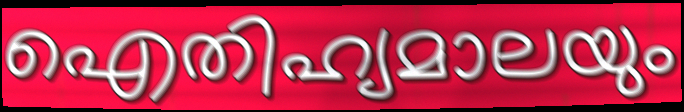
ഐതിഹ്യമാലയും